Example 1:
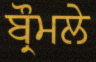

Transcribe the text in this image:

ਬ੍ਰੌਮਲੇ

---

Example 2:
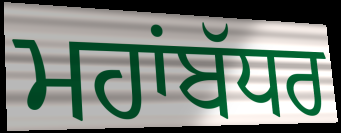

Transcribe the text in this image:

ਮਹਾਂਬੱਧਰ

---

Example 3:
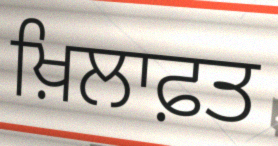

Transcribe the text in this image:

ਖ਼ਿਲਾਫ਼ਤ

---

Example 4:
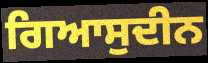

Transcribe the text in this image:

ਗਿਆਸੁਦੀਨ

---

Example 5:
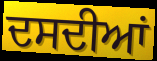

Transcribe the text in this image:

ਦਸਦੀਆਂ